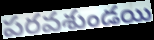
పరవశుండయి